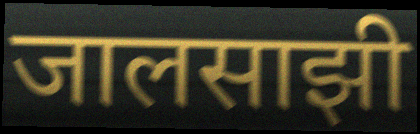
जालसाझी